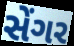
સેંગર